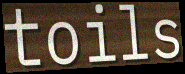
toils